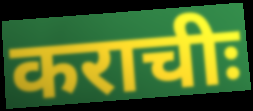
कराचीः